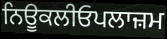
ਨਿਊਕਲੀਓਪਲਾਜ਼ਮ